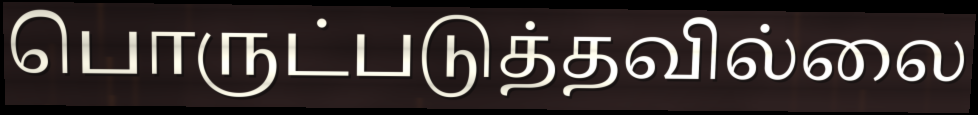
பொருட்படுத்தவில்லை